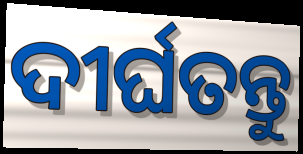
ଦୀର୍ଘତନ୍ତୁ